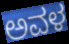
ಅವಳ